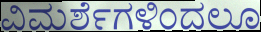
ವಿಮರ್ಶೆಗಳಿಂದಲೂ